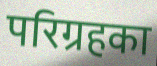
परिग्रहका